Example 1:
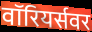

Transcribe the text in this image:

वॉरियर्सवर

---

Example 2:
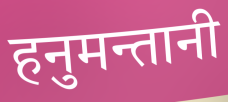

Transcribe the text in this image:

हनुमन्तानी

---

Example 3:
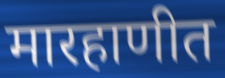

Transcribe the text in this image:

मारहाणीत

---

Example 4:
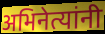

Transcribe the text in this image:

अभिनेत्यांनी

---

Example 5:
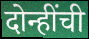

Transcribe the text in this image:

दोन्हींची